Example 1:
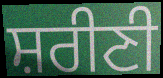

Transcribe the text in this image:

ਸ਼ਰੀਣੀ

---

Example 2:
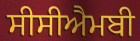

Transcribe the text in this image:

ਸੀਸੀਐਮਬੀ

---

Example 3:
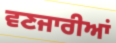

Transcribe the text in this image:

ਵਣਜਾਰੀਆਂ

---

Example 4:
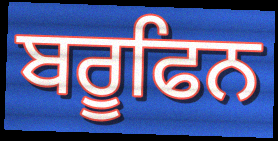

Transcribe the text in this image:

ਬਰੂਫਿਨ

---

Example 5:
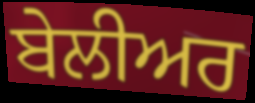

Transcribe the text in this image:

ਬੇਲੀਅਰ